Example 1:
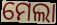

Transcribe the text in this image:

ମେଲା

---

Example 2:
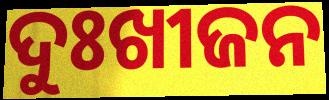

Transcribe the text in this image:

ଦୁଃଖୀଜନ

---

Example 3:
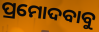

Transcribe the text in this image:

ପ୍ରମୋଦବାବୁ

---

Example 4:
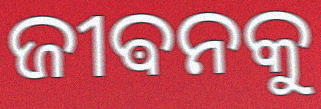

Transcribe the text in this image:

ଜୀଵନକୁ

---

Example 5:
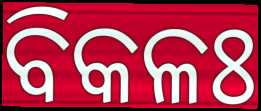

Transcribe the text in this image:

ବିକଳଃ